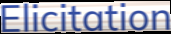
Elicitation